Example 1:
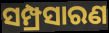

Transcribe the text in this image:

ସମ୍ପ୍ରସାରଣ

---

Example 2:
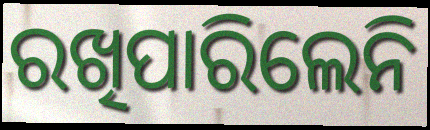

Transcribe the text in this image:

ରଖିପାରିଲେନି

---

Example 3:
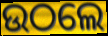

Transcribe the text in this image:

ଉଠଲେ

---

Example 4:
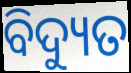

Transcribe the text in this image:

ବିଦ୍ୟୁତ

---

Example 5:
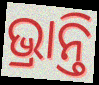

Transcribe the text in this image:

ଭ୍ରାନ୍ତି